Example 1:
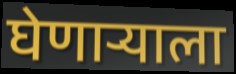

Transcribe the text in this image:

घेणार्‍याला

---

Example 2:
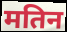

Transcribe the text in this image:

मतिन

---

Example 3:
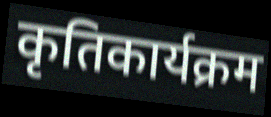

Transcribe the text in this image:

कृतिकार्यक्रम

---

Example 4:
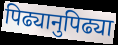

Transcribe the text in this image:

पिढ्यानुपिढ्या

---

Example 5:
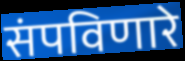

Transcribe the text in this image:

संपविणारे